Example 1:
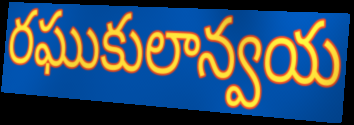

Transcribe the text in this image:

రఘుకులాన్వయ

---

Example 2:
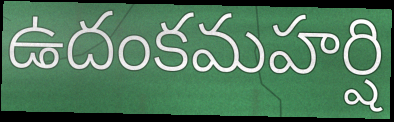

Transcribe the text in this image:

ఉదంకమహర్షి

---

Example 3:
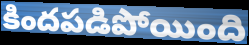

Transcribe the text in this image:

కిందపడిపోయింది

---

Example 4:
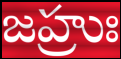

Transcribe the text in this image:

జహ్రుః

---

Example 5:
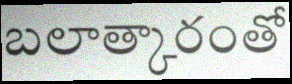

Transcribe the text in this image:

బలాత్కారంతో